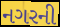
નગરની